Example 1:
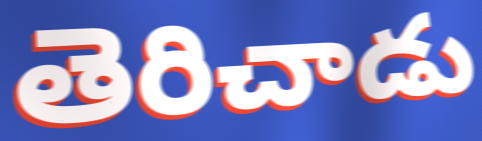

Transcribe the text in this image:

తెరిచాడు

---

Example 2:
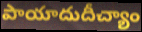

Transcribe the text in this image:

పాయాదుదీచ్యాం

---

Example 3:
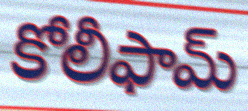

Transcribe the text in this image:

కోలీఫామ్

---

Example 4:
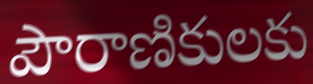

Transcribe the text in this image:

పౌరాణికులకు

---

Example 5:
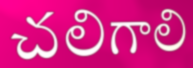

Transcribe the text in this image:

చలిగాలి